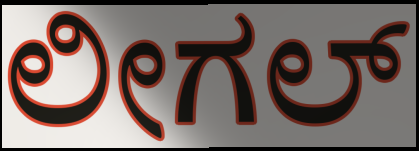
ಲೀಗಲ್